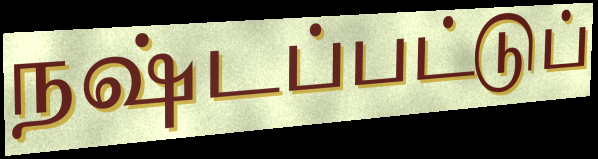
நஷ்டப்பட்டுப்